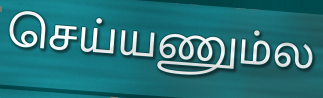
செய்யணும்ல